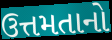
ઉત્તમતાનો